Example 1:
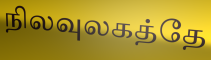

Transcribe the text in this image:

நிலவுலகத்தே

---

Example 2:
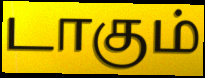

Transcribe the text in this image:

டாகும்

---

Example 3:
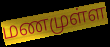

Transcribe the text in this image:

மணமுள்ள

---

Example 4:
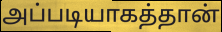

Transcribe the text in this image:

அப்படியாகத்தான்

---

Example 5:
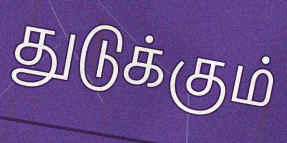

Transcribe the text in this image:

துடுக்கும்